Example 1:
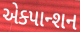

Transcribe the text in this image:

એક્પાન્શન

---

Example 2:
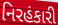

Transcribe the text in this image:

નિરહંકારી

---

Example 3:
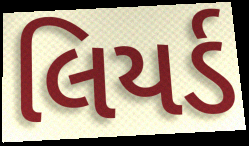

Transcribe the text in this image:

લિયર્ડ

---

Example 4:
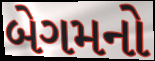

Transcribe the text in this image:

બેગમનો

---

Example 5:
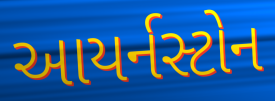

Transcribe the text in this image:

આયર્નસ્ટોન